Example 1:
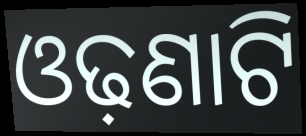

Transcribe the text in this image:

ଓଢ଼ଣାଟି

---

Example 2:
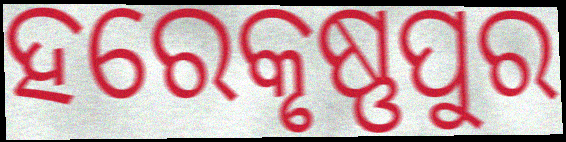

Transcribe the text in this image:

ହରେକୃଷ୍ଣପୁର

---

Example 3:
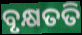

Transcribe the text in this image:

ବୃକ୍ଷତତି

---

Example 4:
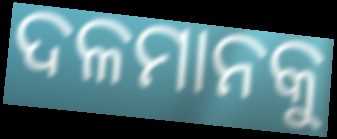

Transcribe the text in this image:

ଦଳମାନକୁ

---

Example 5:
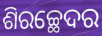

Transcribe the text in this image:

ଶିରଚ୍ଛେଦର